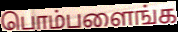
பொம்பளைங்க